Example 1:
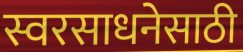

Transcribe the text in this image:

स्वरसाधनेसाठी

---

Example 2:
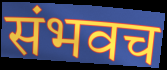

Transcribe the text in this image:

संभवच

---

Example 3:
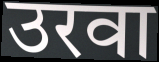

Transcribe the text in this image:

उरवा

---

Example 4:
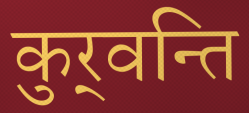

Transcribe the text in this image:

कुर्वन्ति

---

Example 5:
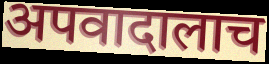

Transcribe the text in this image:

अपवादालाच